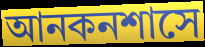
আনকনশাসে